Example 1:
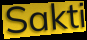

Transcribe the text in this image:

Sakti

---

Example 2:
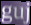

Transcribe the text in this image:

guj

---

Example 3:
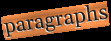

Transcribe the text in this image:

paragraphs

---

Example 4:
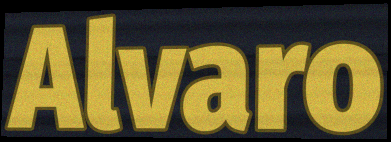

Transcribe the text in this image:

Alvaro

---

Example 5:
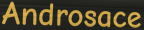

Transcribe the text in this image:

Androsace